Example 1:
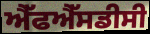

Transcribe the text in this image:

ਐੱਫਐੱਸਡੀਸੀ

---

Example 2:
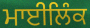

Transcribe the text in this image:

ਮਾਈਲਿੰਕ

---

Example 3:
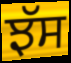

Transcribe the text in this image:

ਝੱਸ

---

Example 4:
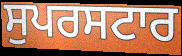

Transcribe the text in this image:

ਸੁਪਰਸਟਾਰ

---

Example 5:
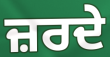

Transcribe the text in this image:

ਜ਼ਰਦੇ